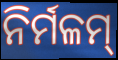
ନିର୍ମଳମ୍